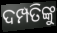
ଦମ୍ପତିଙ୍କୁ